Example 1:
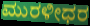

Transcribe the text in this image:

ಮುರಳೀಧರ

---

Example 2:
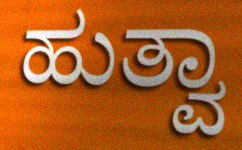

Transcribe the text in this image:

ಹುತ್ವಾ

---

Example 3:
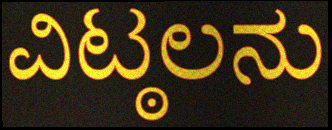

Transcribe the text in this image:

ವಿಟ್ಠಲನು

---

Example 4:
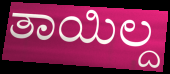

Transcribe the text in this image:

ತಾಯಿಲ್ದ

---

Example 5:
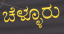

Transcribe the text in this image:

ಚೆಳ್ಳೂರು